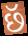
છૅ